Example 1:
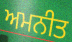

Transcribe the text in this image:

ਅਮਨੀਤ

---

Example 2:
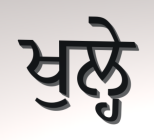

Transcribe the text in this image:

ਖੁਲ੍ਹੇ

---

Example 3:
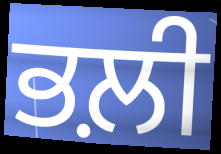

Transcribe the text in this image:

ਭਲ਼ੀ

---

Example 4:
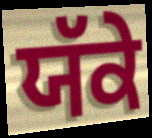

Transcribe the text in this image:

ਯੱਕੇ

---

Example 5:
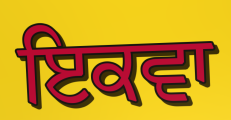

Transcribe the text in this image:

ਇਕਵਾ